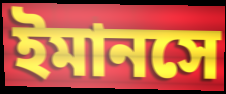
ইমানসে